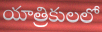
యాత్రికులలో